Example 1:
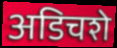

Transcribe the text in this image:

अडिचशे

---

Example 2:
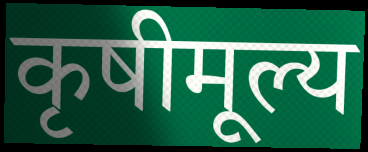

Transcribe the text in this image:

कृषीमूल्य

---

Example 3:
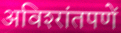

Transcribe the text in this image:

अविश्रांतपणें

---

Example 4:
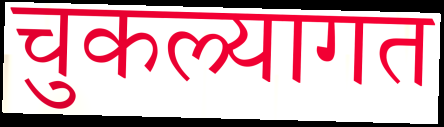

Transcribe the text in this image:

चुकल्यागत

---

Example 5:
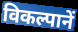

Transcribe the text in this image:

विकल्पानें